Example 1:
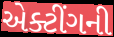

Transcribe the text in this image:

એક્ટીંગની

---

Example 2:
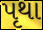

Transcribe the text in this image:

પૃથા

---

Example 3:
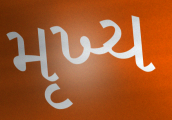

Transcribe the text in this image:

મૃખ્ય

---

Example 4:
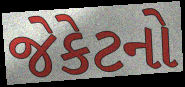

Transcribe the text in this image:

જેકેટનો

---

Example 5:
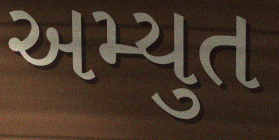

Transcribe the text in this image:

અમ્યુત